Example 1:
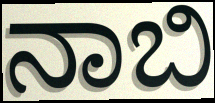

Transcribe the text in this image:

ನಾಬಿ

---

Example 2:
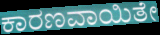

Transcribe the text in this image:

ಕಾರಣವಾಯಿತೇ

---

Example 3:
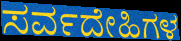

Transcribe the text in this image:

ಸರ್ವದೇಹಿಗಳ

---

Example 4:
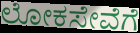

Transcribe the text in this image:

ಲೋಕಸೇವೆಗೆ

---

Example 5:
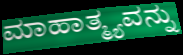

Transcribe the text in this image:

ಮಾಹಾತ್ಮ್ಯವನ್ನು